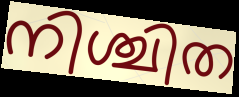
നിശ്ചിത